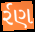
ર્રણ